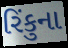
રિંકુના